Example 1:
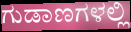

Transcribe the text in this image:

ಗುಡಾಣಗಳಲ್ಲಿ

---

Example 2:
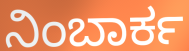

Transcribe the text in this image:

ನಿಂಬಾರ್ಕ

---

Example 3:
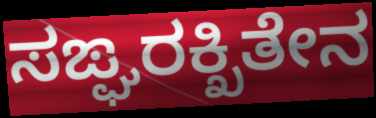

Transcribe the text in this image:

ಸಙ್ಘರಕ್ಖಿತೇನ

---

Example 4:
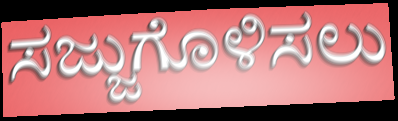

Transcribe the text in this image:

ಸಜ್ಜುಗೊಳಿಸಲು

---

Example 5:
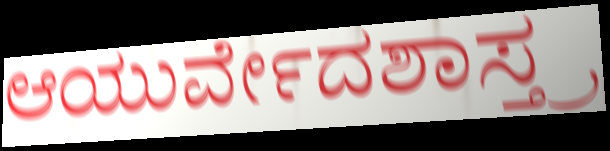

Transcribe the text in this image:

ಆಯುರ್ವೇದಶಾಸ್ತ್ರ